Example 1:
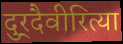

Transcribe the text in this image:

दुर्दैवीरित्या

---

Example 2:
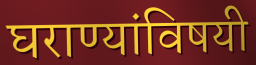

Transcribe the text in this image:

घराण्यांविषयी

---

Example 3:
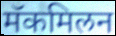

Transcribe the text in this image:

मॅकमिलन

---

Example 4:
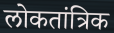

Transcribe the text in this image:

लोकतांत्रिक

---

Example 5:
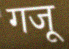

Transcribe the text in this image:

गजू